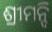
ଶ୍ରୀମନ୍ଦି